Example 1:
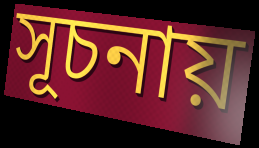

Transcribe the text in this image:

সূচনায়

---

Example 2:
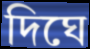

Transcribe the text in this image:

দিঘে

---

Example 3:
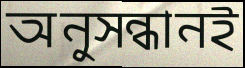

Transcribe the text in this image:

অনুসন্ধানই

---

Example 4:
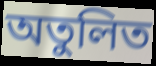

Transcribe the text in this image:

অতুলিত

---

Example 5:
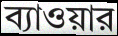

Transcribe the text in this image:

ব্যাওয়ার